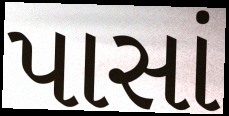
પાસાં